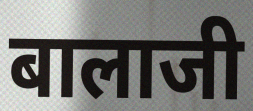
बालाजी